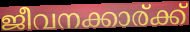
ജീവനക്കാര്ക്ക്